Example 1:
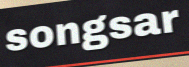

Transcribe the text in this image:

songsar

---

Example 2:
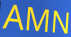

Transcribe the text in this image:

AMN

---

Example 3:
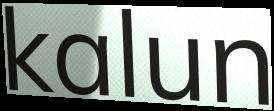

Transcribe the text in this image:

kalun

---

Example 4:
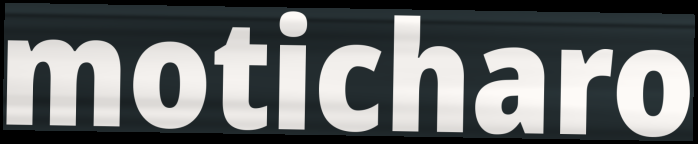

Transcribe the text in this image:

moticharo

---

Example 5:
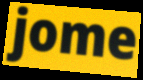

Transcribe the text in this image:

jome